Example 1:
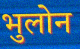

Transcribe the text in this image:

भुलोन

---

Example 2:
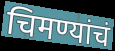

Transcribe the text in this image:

चिमण्यांचं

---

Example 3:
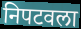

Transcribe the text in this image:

निपटवला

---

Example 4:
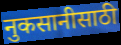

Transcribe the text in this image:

नुकसानीसाठी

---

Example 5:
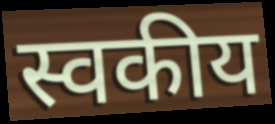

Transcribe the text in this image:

स्वकीय